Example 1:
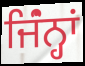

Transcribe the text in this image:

ਜਿੰਂਨ੍ਹਾਂ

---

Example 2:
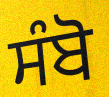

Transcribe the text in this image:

ਸੰਬੋ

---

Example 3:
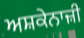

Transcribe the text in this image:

ਅਸ਼ਕੇਨਾਜ਼ੀ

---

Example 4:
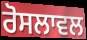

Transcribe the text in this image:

ਰੋਸਲਾਵਲ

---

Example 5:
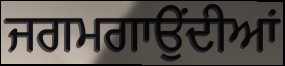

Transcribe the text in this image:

ਜਗਮਗਾਉਂਦੀਆਂ